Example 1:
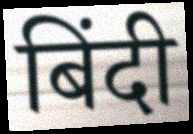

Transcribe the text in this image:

बिंदी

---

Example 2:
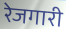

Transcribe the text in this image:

रेजगारी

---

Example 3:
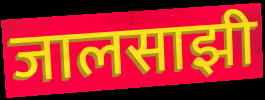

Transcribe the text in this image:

जालसाझी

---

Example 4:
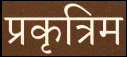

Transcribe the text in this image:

प्रकृत्रिम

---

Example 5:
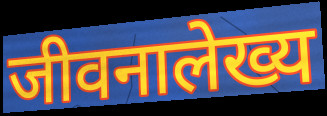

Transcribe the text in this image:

जीवनालेख्य